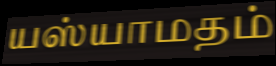
யஸ்யாமதம்